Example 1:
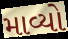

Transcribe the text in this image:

માવ્યો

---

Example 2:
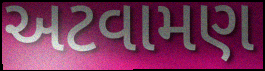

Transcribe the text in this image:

અટવામણ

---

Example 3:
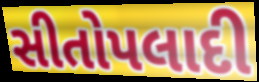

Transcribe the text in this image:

સીતોપલાદી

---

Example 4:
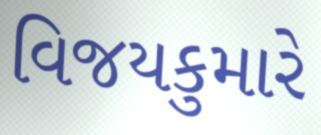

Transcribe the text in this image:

વિજયકુમારે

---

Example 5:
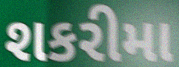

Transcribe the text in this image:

શકરીમા